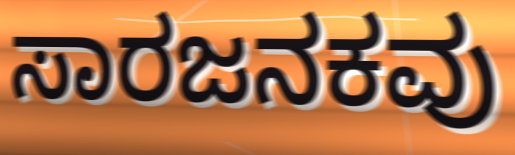
ಸಾರಜನಕವು